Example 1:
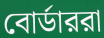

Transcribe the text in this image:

বোর্ডাররা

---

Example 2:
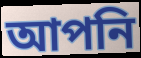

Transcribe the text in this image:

আপনি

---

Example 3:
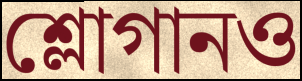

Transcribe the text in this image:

শ্লোগানও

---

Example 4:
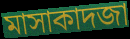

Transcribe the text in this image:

মাসাকাদজা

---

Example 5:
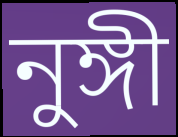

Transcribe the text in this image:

নুঙ্গী